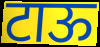
टाऊ